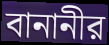
বানানীর